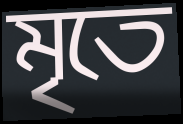
মৃতে